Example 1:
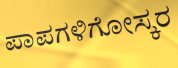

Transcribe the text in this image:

ಪಾಪಗಳಿಗೋಸ್ಕರ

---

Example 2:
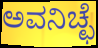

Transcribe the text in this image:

ಅವನಿಚ್ಛೆ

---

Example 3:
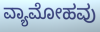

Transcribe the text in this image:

ವ್ಯಾಮೋಹವು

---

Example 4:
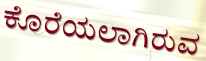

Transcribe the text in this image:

ಕೊರೆಯಲಾಗಿರುವ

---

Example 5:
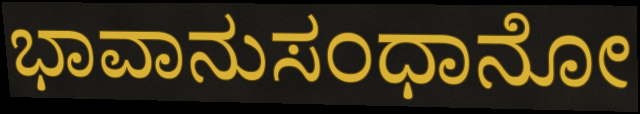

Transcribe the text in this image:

ಭಾವಾನುಸಂಧಾನೋ